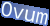
Ovum